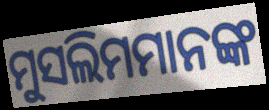
ମୁସଲିମମାନଙ୍କ